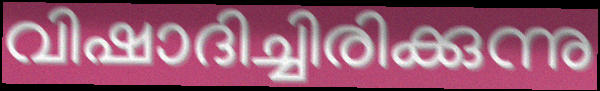
വിഷാദിച്ചിരിക്കുന്നു